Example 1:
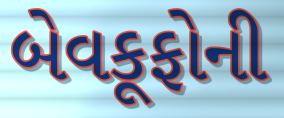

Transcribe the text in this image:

બેવકૂફોની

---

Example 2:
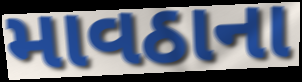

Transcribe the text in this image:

માવઠાના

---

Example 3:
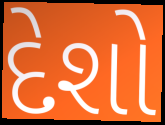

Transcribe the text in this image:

દેશો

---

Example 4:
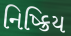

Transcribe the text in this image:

નિષ્ક્રિય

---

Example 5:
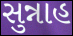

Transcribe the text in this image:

સુન્નાહ